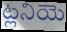
ట్లనియె